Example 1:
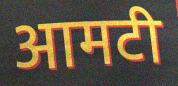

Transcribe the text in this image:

आमटी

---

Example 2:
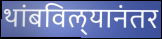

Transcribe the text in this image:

थांबविल्यानंतर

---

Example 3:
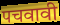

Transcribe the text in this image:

पचवावी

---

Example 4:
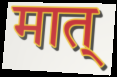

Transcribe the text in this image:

मात्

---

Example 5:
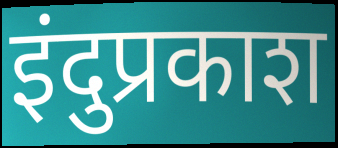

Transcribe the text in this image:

इंदुप्रकाश